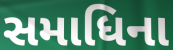
સમાધિના